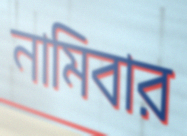
নামিবার